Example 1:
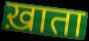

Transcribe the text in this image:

ख़ाता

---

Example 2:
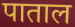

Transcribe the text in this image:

पाताल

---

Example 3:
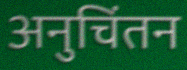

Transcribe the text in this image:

अनुचिंतन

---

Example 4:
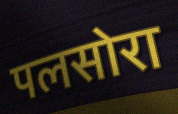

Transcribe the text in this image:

पलसोरा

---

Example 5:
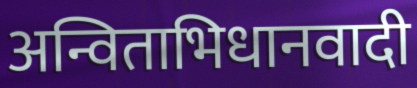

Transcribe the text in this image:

अन्विताभिधानवादी